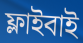
ফ্লাইবাই